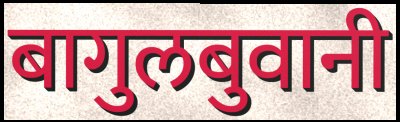
बागुलबुवानी